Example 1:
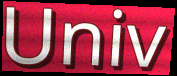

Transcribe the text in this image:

Univ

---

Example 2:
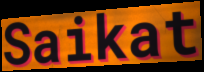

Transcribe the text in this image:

Saikat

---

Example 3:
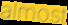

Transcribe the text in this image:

almost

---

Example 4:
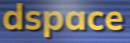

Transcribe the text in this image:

dspace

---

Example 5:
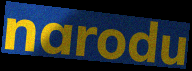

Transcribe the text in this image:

narodu